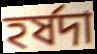
হর্ষদা